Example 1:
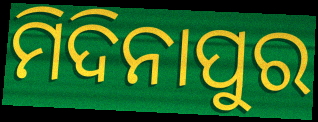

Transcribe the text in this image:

ମିଦିନାପୁର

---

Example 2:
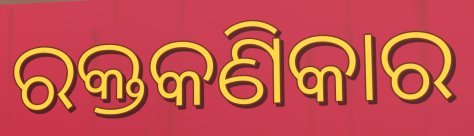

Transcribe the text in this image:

ରକ୍ତକଣିକାର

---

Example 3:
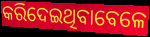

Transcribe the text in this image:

କରିଦେଇଥିବାବେଳେ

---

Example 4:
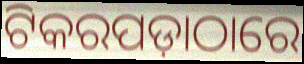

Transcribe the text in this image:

ଟିକରପଡ଼ାଠାରେ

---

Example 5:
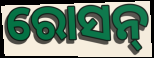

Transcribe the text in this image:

ରୋସନ୍